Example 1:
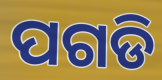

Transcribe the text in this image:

ପଗଡି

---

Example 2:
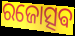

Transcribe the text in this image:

ରଜୋତ୍ସଵ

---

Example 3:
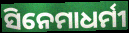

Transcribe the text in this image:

ସିନେମାଧର୍ମୀ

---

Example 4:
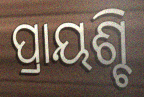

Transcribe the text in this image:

ପ୍ରାୟଶ୍ଚି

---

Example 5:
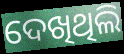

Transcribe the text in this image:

ଦେଖିଥିଲି